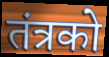
तंत्रको